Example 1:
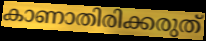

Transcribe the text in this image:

കാണാതിരിക്കരുത്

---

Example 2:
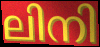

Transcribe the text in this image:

ലിനി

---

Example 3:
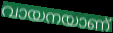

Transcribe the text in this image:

വായനയാണ്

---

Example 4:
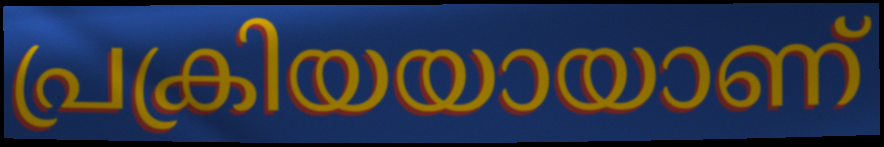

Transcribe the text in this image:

പ്രക്രിയയായാണ്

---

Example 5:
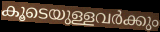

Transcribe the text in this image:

കൂടെയുള്ളവർക്കും